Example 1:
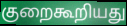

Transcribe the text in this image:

குறைகூறியது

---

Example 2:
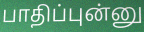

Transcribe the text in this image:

பாதிப்புன்னு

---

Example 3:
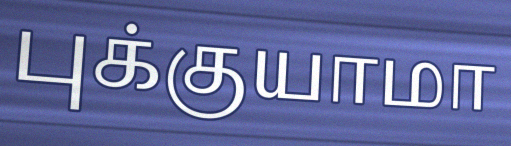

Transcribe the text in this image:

புக்குயாமா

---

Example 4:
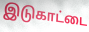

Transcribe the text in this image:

இடுகாட்டை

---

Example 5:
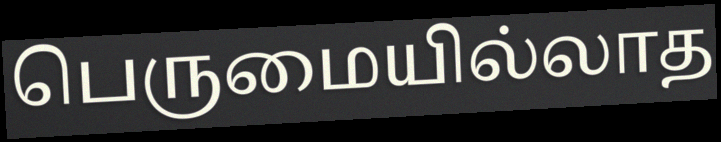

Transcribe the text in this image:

பெருமையில்லாத